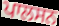
ਪਾਲਸਨ